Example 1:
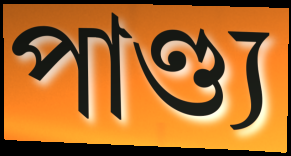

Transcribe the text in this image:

পাণ্ড্য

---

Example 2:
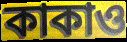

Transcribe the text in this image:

কাকাও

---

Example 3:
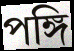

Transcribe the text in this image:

পঙ্গি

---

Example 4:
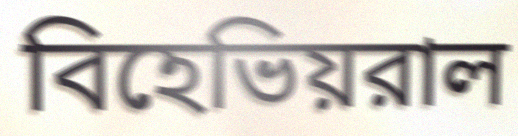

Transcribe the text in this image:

বিহেভিয়রাল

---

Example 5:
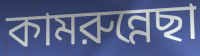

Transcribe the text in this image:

কামরুন্নেছা